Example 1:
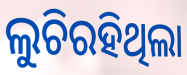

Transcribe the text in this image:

ଲୁଚିରହିଥିଲା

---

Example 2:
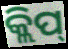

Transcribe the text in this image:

କ୍ଲିପ୍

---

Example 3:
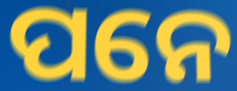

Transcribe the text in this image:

ପନେ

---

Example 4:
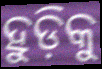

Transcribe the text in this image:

ହୁଡ଼ିକୁ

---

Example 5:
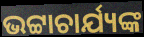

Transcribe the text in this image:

ଭଟ୍ଟାଚାର୍ଯ୍ୟଙ୍କ